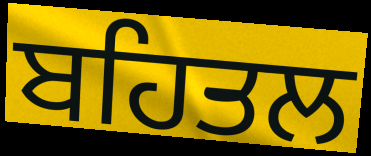
ਬਹਿਤਲ